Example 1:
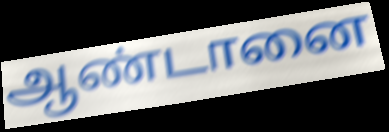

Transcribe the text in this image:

ஆண்டானை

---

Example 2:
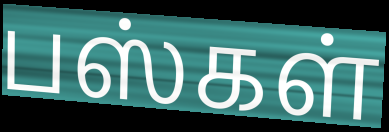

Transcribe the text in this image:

பஸ்கள்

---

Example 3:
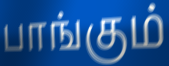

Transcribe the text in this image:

பாங்கும்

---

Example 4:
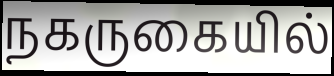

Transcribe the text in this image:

நகருகையில்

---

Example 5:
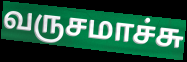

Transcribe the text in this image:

வருசமாச்சு